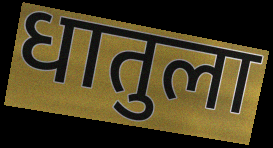
धातुला